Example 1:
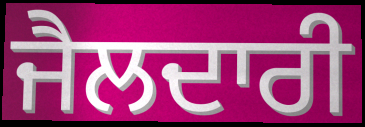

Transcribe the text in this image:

ਜੈਲਦਾਰੀ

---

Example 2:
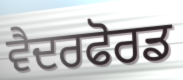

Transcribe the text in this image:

ਵੈਦਰਫੋਰਡ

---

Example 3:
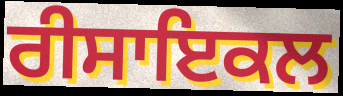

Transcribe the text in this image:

ਰੀਸਾਇਕਲ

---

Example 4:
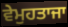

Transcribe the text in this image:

ਵੇਮੁਹਤਾਜਾ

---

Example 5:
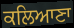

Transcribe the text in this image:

ਕਲਿਆਣਾ